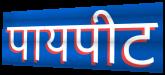
पायपीट